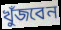
খুঁজবেন